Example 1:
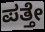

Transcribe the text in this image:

ಪತ್ತೇ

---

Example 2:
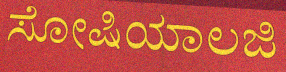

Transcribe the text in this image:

ಸೋಷಿಯಾಲಜಿ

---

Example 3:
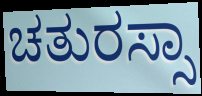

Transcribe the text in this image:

ಚತುರಸ್ಸಾ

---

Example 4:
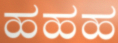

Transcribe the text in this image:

ಹಹಹ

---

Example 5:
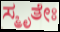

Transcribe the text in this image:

ಸ್ಮೃತೇಃ